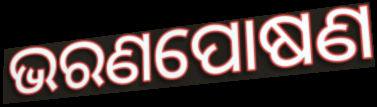
ଭରଣପୋଷଣ